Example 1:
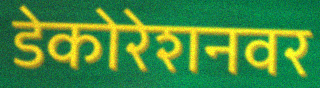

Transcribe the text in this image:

डेकोरेशनवर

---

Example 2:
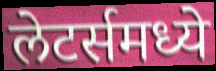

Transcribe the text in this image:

लेटर्समध्ये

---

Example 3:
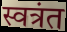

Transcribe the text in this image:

स्वत्रंत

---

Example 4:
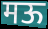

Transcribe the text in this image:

मऊ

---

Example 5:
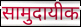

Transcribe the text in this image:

सामुदायीक